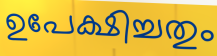
ഉപേക്ഷിച്ചതും